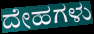
ದೇಹಗಳು